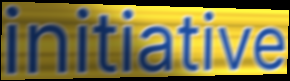
initiative